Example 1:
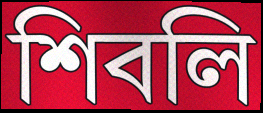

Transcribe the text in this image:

শিবলি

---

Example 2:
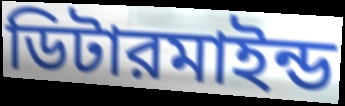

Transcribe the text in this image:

ডিটারমাইন্ড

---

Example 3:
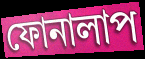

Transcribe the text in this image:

ফোনালাপ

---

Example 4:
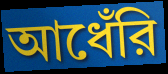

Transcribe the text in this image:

আধেঁরি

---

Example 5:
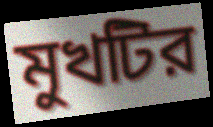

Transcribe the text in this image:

মুখটির